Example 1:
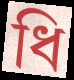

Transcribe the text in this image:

ধি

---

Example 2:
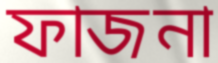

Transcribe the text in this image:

ফাজনা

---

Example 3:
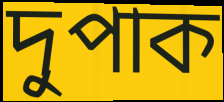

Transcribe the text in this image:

দুপাক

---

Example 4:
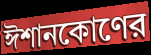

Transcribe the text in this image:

ঈশানকোণের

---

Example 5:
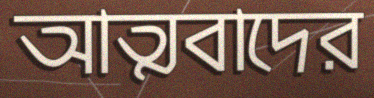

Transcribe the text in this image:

আত্মবাদের